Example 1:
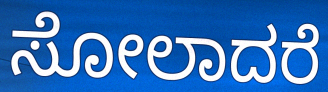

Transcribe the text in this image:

ಸೋಲಾದರೆ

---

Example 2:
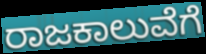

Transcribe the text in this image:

ರಾಜಕಾಲುವೆಗೆ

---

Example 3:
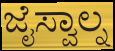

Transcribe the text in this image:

ಜೈಸ್ವಾಲ್ನ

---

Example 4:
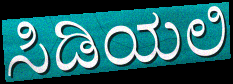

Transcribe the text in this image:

ಸಿಡಿಯಲಿ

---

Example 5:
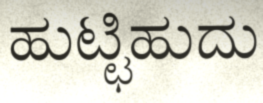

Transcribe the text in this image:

ಹುಟ್ಟಿಹುದು